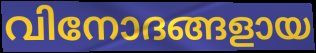
വിനോദങ്ങളായ